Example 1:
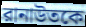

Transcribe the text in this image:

রানাউতকে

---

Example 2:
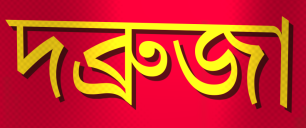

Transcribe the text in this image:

দব্রুজা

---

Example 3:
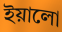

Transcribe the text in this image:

ইয়ালো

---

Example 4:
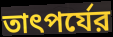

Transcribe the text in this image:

তাৎপর্যের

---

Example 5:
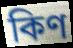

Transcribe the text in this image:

কিণ